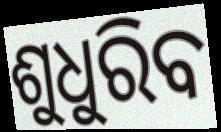
ଶୁଧୁରିବ